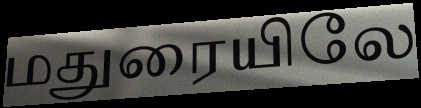
மதுரையிலே